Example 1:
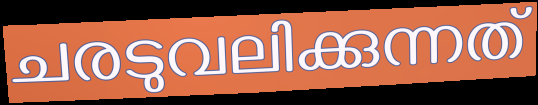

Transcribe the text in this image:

ചരടുവലിക്കുന്നത്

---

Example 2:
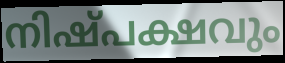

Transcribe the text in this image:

നിഷ്പക്ഷവും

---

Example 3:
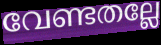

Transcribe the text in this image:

വേണ്ടതല്ലേ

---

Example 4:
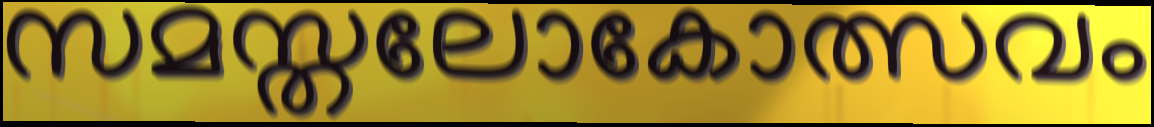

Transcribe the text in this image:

സമസ്തലോകോത്സവം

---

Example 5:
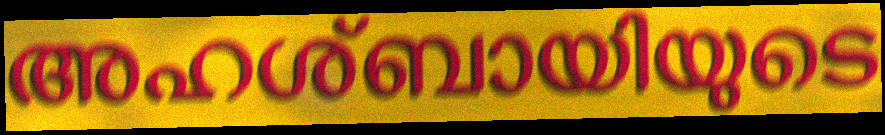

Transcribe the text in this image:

അഹശ്ബായിയുടെ